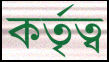
কৰ্তৃত্ব